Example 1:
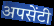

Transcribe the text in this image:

अपसेंटी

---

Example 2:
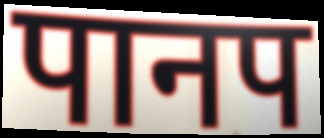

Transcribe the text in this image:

पानप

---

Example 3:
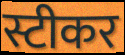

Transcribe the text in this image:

स्टीकर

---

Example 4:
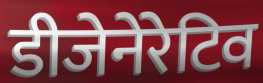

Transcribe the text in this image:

डीजेनेरेटिव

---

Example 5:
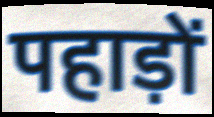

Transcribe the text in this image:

पहाड़ों